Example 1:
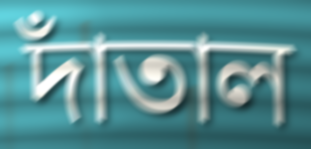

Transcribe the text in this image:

দাঁতাল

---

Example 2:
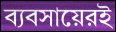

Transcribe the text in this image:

ব্যবসায়েরই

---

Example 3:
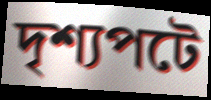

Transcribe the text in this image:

দৃশ্যপটে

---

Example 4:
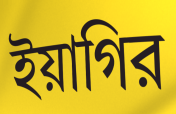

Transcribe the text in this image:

ইয়াগির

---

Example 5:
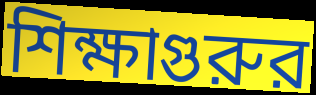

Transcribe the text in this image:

শিক্ষাগুরুর